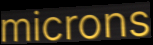
microns